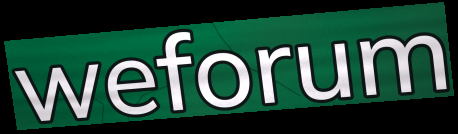
weforum